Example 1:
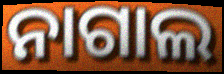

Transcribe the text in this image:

ନାଗାଲ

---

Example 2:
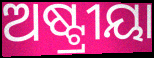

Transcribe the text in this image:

ଅଷ୍ଟ୍ରୀୟା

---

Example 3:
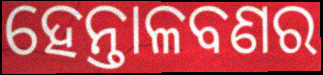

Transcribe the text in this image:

ହେନ୍ତାଳବଣର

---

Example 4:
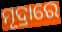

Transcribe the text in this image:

ମୂଦ୍ରାରେ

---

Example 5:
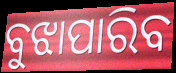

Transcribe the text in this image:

ବୁଝାପାରିବ